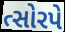
ત્સોરપે